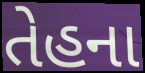
તેહના